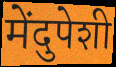
मेंदुपेशी